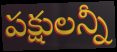
పక్షులన్నీ